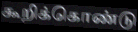
கூறிக்கொண்டு